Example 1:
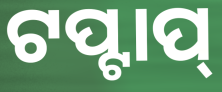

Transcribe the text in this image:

ଟପ୍ଟାପ୍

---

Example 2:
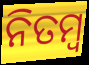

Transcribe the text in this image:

ନିତମ୍ବ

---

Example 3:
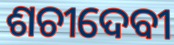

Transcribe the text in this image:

ଶଚୀଦେବୀ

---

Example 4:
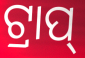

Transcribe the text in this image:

ଟ୍ରାପ୍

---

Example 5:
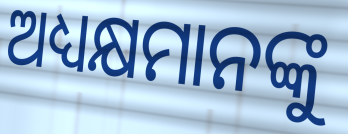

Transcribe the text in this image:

ଅଧ୍ୟକ୍ଷମାନଙ୍କୁ